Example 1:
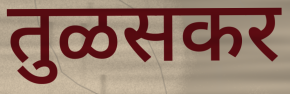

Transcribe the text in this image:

तुळसकर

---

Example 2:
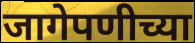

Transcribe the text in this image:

जागेपणीच्या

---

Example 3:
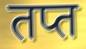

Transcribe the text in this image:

तप्त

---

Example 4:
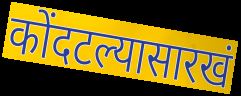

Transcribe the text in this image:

कोंदटल्यासारखं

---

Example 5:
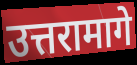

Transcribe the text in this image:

उत्तरामागे